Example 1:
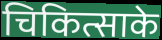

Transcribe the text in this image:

चिकित्साके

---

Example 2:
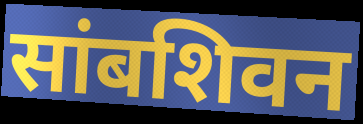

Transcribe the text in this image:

सांबशिवन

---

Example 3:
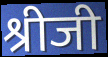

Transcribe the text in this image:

श्रीजी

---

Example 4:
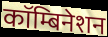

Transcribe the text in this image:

कॉम्बिनेशन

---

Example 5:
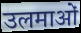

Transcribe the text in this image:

उलमाओं